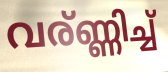
വര്ണ്ണിച്ച്